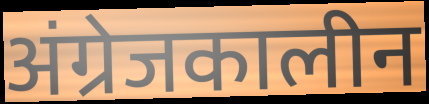
अंग्रेजकालीन